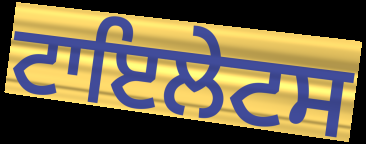
ਟਾਇਲੇਟਸ